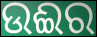
ଉଈର